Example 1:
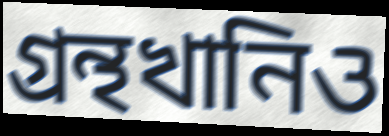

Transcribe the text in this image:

গ্রন্থখানিও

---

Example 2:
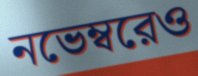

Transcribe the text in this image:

নভেম্বরেও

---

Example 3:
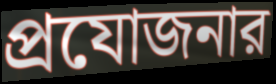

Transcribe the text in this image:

প্রযোজনার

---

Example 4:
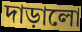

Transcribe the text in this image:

দাড়ালো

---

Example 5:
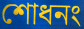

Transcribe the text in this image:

শোধনং